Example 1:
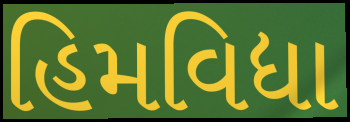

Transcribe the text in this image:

હિમવિદ્યા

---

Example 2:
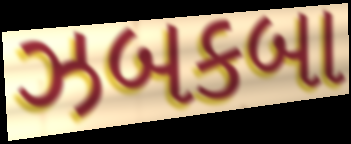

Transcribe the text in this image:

ઝબકબા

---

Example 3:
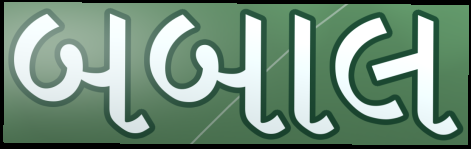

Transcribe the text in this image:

બબાલ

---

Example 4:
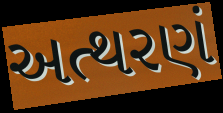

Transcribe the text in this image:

અત્થરણં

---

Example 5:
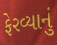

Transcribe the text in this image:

ફેરવ્યાનું